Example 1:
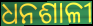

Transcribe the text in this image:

ଧନଶାଳୀ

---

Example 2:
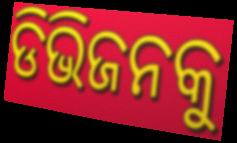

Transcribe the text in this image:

ଡିଭିଜନକୁ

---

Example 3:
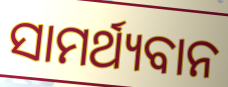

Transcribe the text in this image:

ସାମର୍ଥ୍ୟବାନ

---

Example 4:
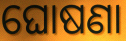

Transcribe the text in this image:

ଘୋଷଣା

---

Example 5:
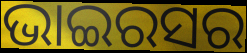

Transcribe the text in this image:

ଭାଇରସର